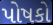
પોષકો